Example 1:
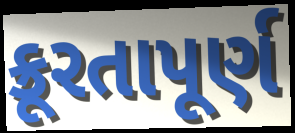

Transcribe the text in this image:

ક્રૂરતાપૂર્ણ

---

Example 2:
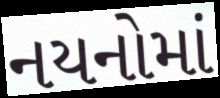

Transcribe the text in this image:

નયનોમાં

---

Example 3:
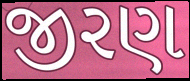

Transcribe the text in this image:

જીરણ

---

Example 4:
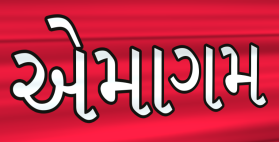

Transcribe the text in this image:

એમાગમ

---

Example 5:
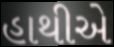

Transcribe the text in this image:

હાથીએ